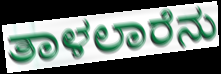
ತಾಳಲಾರೆನು